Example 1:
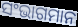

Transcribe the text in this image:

ସଂଭାଗମାନ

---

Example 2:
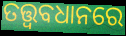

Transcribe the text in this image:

ତତ୍ତ୍ୱବଧାନରେ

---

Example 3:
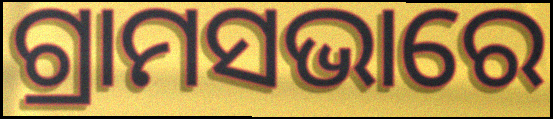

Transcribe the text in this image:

ଗ୍ରାମସଭାରେ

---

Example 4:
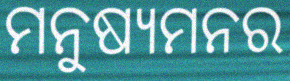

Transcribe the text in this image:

ମନୁଷ୍ୟମନର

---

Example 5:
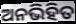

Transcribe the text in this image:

ଅନଭିହିତ